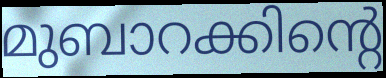
മുബാറക്കിന്റെ